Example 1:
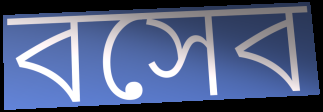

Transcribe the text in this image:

বসেব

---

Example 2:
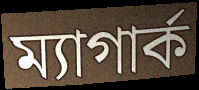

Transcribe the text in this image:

ম্যাগার্ক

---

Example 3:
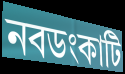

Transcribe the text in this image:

নবডংকাটি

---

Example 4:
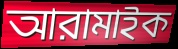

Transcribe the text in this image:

আরামাইক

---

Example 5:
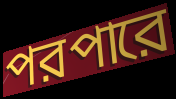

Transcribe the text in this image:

পরপারে